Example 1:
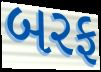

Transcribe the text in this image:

બરફ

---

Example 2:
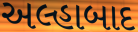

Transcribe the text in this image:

અલ્હાબાદ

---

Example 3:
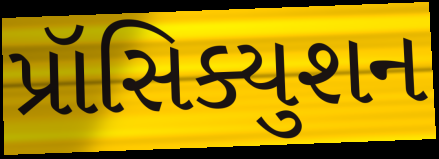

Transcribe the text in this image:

પ્રૉસિક્યુશન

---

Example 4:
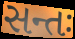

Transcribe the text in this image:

સન્તઃ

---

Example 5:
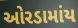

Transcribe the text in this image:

ઓરડામાંય